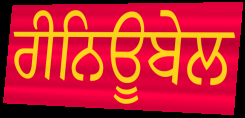
ਰੀਨਿਊਬੇਲ